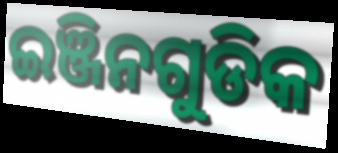
ଇଞ୍ଜିନଗୁଡିକ